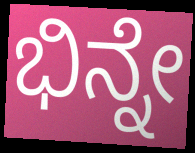
ಭಿನ್ನೇ